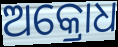
ଅକ୍ରୋଧ